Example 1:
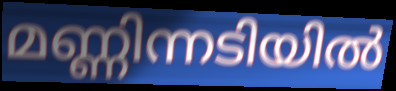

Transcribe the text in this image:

മണ്ണിന്നടിയിൽ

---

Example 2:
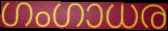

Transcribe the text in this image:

ഗംഗാധര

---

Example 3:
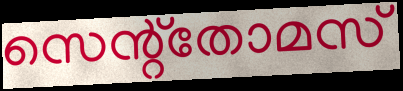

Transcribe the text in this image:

സെന്റ്തോമസ്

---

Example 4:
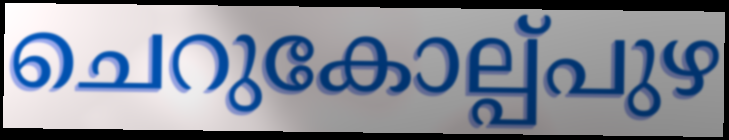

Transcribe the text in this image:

ചെറുകോല്പ്പുഴ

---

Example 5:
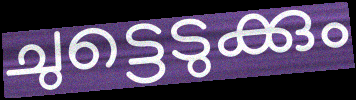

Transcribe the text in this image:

ചുട്ടെടുക്കും